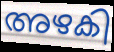
അഴകി